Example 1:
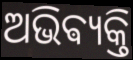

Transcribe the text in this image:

ଅଭିଵ୍ୟକ୍ତି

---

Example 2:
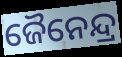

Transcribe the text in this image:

ଜୈନେନ୍ଦ୍ର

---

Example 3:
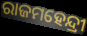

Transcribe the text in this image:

ରାଜମହେନ୍ଦ୍ରୀ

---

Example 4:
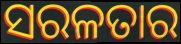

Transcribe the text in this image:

ସରଳତାର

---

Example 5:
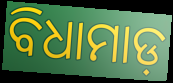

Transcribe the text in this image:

ବିଧାମାଡ଼